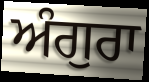
ਅੰਗੁਰਾ